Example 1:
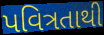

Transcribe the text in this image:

પવિત્રતાથી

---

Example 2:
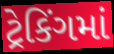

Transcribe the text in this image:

ટ્રેકિંગમાં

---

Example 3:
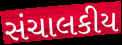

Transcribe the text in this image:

સંચાલકીય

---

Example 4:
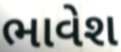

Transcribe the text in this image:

ભાવેશ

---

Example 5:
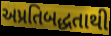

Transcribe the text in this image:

અપ્રતિબદ્ધતાથી